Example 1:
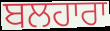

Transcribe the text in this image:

ਬਲਹਾਰਾ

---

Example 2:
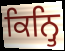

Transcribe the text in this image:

ਕਿਨ੍ਤਿ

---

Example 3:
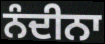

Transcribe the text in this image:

ਨੰਦੀਨਾ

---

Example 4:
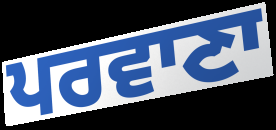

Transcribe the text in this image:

ਪਰਵਾਣਾ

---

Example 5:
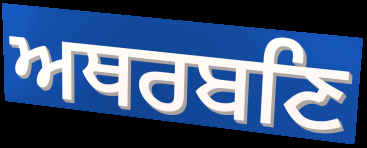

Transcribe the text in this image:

ਅਥਰਬਣਿ